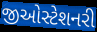
જીઓસ્ટેશનરી